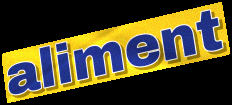
aliment